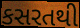
કસરતથી